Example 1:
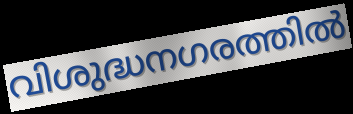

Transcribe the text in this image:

വിശുദ്ധനഗരത്തിൽ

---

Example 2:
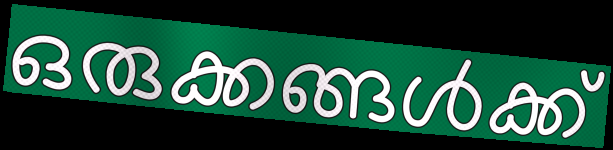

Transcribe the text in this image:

ഒരുക്കങ്ങൾക്ക്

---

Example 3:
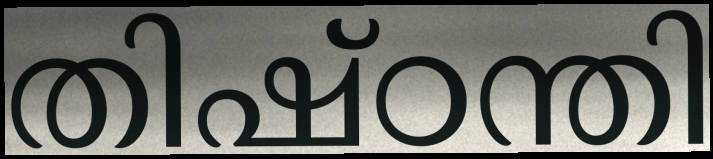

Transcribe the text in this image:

തിഷ്ഠന്തി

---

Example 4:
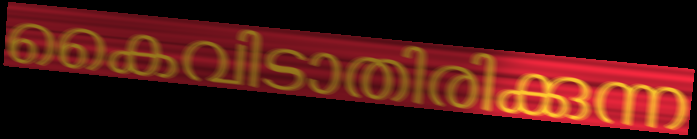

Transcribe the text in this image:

കൈവിടാതിരിക്കുന്ന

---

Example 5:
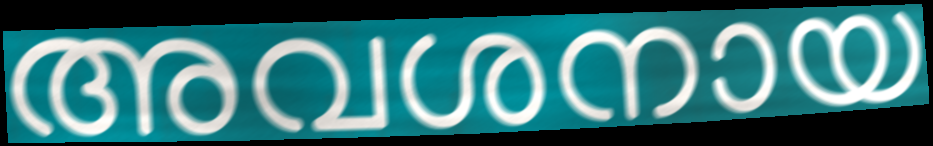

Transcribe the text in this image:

അവശനായ